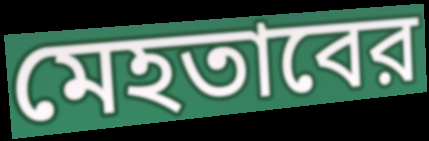
মেহতাবের